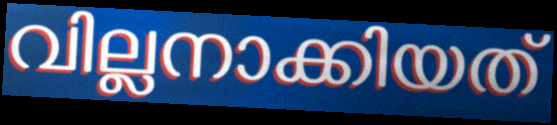
വില്ലനാക്കിയത്